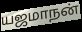
யஜமாநன்